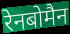
रेनबोमैन